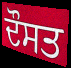
ਦੌਸਤ